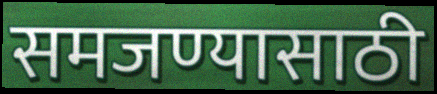
समजण्यासाठी